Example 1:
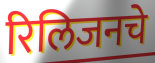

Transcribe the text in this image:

रिलिजनचे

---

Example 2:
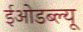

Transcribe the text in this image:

ईओडब्ल्यू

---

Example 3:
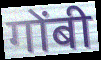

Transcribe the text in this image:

गोंबी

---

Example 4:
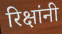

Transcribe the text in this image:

रिक्षांनी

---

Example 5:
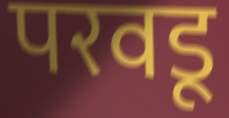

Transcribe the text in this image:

परवडू